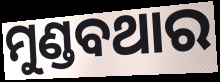
ମୁଣ୍ଡବଥାର